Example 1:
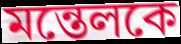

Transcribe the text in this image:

মন্তেলকে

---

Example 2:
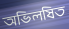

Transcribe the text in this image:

অভিলষিত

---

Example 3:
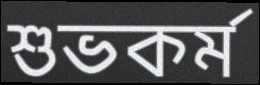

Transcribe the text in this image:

শুভকর্ম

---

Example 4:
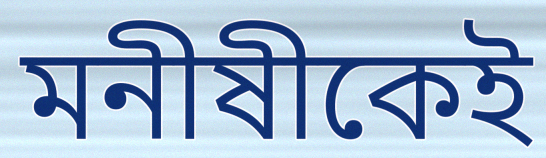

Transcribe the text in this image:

মনীষীকেই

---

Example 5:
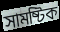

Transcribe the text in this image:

সামষ্টিক